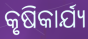
କୃଷିକାର୍ଯ୍ୟ